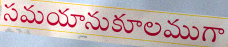
సమయానుకూలముగా